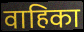
वाहिका